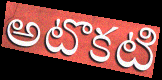
అటొకటి